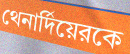
থেনার্দিয়েরকে